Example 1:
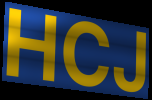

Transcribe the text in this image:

HCJ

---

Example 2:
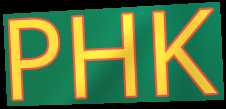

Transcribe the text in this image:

PHK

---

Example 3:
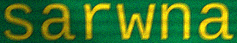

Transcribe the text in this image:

sarwna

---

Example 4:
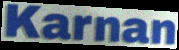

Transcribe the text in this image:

Karnan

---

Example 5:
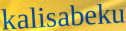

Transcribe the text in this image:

kalisabeku